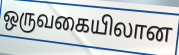
ஒருவகையிலான